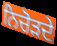
ਨਿਚੋੜਦੇ